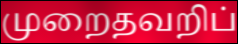
முறைதவறிப்